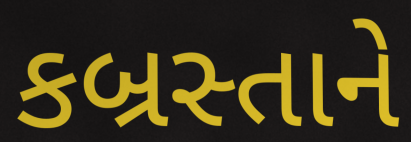
કબ્રસ્તાને